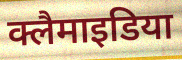
क्लैमाइडिया